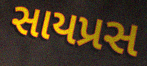
સાયપ્રસ